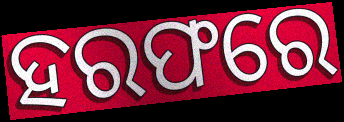
ହରଫରେ